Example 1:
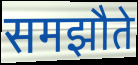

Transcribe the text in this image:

समझौते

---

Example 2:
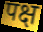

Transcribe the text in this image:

पक्ष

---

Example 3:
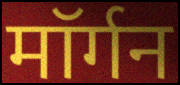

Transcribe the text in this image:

मॉर्गन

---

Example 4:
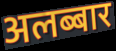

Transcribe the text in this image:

अलब्बार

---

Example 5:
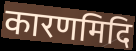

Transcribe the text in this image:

कारणमिदि